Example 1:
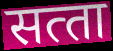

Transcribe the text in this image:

सत्‍ता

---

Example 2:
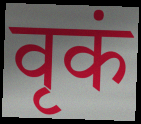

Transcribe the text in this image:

वृकं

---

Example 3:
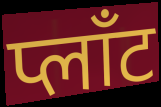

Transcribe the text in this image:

प्लाँट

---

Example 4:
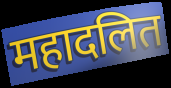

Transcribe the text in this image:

महादलित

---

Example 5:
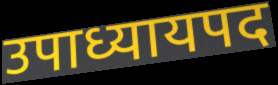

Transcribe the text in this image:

उपाध्यायपद